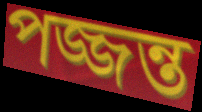
পজ্জন্ত